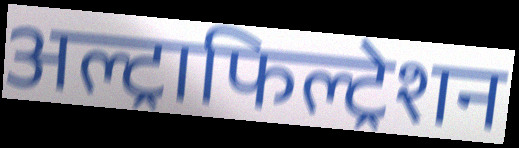
अल्ट्राफिल्ट्रेशन